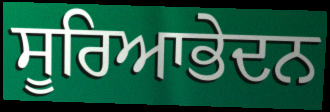
ਸੂਰਿਆਭੇਦਨ